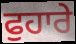
ਫੁਹਾਰੇ